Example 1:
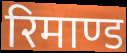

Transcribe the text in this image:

रिमाण्ड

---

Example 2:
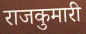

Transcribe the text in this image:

राजकुमारी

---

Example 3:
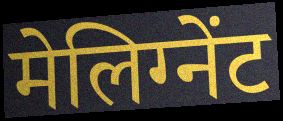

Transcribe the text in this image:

मेलिग्नेंट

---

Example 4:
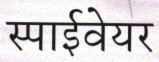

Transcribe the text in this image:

स्पाईवेयर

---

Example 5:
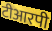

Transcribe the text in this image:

टीआरपी